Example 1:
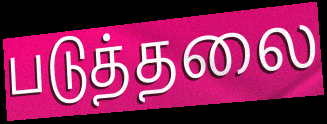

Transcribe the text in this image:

படுத்தலை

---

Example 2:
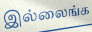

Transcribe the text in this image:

இல்லைங்க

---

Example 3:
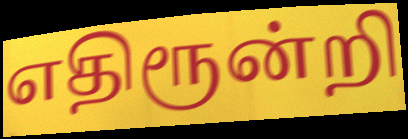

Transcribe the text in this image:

எதிரூன்றி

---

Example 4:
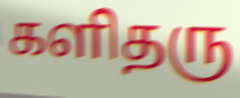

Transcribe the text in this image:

களிதரு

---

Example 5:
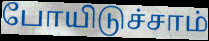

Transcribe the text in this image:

போயிடுச்சாம்